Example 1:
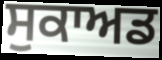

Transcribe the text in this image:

ਸੁਕਾਅਡ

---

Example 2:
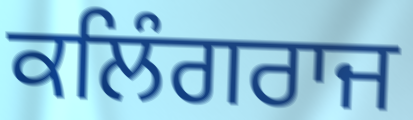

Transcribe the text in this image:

ਕਲਿੰਗਰਾਜ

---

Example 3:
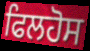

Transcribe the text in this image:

ਫਿਲਹੋਸ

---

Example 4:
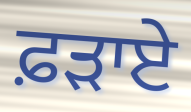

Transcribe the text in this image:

ਫ਼ੜਾਏ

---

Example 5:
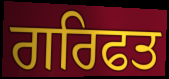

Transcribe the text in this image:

ਗਰਿਫਤ